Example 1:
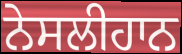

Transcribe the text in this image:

ਨੇਸਲੀਹਾਨ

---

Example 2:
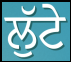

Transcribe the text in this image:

ਲੁੱਟੇ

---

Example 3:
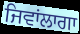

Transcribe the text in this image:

ਜਿਵਾਂਲਾਗਾ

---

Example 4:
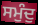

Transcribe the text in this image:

ਸਮੁੰਦੁ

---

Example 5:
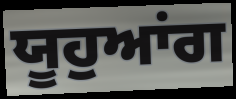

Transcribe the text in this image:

ਯੂਹੁਆਂਗ